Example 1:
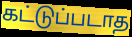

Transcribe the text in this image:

கட்டுப்படாத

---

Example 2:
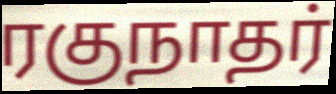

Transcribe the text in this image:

ரகுநாதர்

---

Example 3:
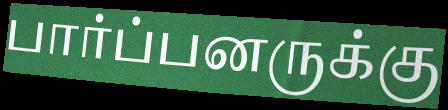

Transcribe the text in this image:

பார்ப்பனருக்கு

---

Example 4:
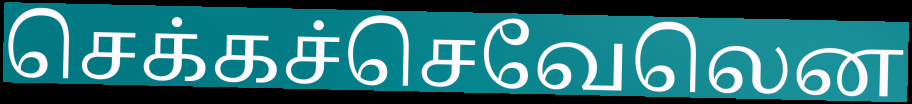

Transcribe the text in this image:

செக்கச்செவேலென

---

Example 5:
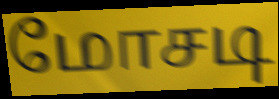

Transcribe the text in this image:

மோசடி